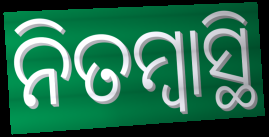
ନିତମ୍ବାସ୍ଥି